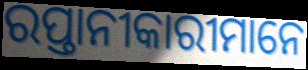
ରପ୍ତାନୀକାରୀମାନେ